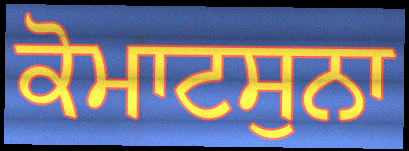
ਕੋਮਾਟਸੁਨਾ